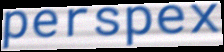
perspex